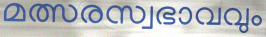
മത്സരസ്വഭാവവും